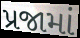
પ્રજામાં